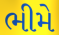
ભીમે